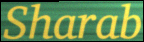
Sharab